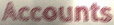
Accounts